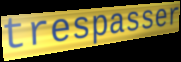
trespasser